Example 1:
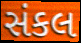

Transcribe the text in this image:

સંકલ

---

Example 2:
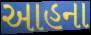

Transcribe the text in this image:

આહના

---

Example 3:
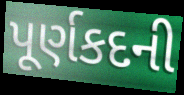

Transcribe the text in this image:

પૂર્ણકદની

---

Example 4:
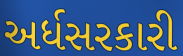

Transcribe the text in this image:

અર્ધસરકારી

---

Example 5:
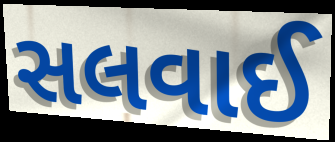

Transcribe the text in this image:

સલવાઈ